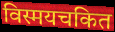
विस्मयचकित